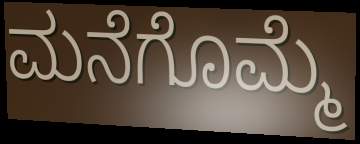
ಮನೆಗೊಮ್ಮೆ